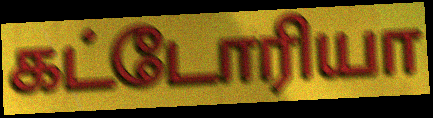
கட்டோரியா